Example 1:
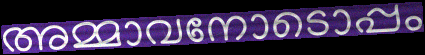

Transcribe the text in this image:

അമ്മാവനോടൊപ്പം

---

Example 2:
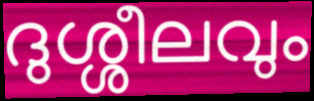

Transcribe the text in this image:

ദുശ്ശീലവും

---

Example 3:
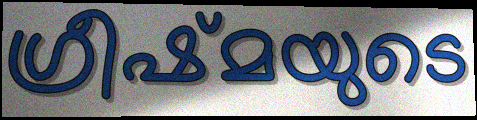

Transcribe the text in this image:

ഗ്രീഷ്മയുടെ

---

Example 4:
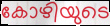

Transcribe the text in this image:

കോഴിയുടെ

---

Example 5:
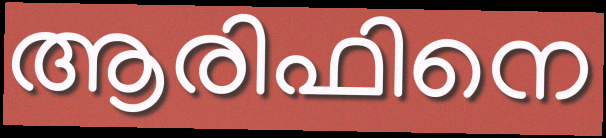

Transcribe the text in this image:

ആരിഫിനെ